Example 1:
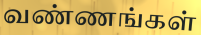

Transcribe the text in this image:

வண்ணங்கள்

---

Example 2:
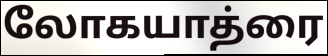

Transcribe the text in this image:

லோகயாத்ரை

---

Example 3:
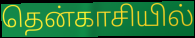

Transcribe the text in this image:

தென்காசியில்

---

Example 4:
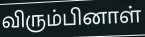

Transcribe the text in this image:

விரும்பினாள்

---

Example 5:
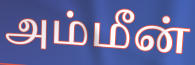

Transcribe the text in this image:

அம்மீன்